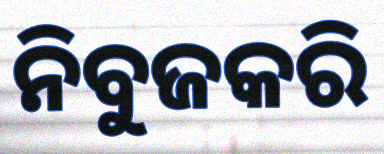
ନିବୁଜକରି